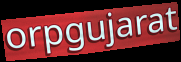
orpgujarat